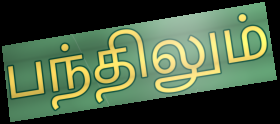
பந்திலும்